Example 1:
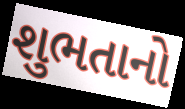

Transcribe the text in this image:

શુભતાનો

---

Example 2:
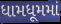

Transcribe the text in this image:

ધામધૂમમાં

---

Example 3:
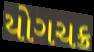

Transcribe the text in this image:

યોગચક્ર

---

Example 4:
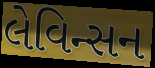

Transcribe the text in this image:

લેવિન્સન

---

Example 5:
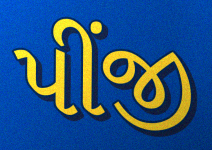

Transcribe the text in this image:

પીંજી